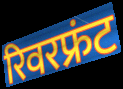
रिवरफ्रंट